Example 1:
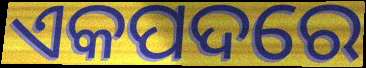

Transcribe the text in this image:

ଏକପଦରେ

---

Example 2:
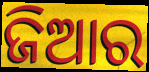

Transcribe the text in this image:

ଜିଆର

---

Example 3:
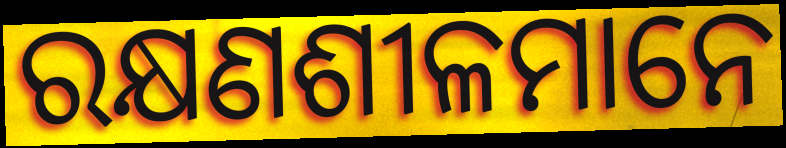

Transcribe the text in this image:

ରକ୍ଷଣଶୀଳମାନେ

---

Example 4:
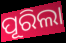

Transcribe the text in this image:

ପୂରିଲା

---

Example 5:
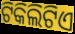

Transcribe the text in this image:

ଟିକିଲିଟିଏ